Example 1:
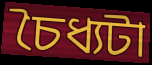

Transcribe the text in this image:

চৈধ্যটা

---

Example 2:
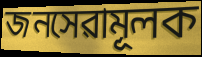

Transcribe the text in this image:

জনসেৱামূলক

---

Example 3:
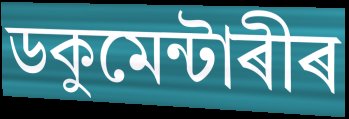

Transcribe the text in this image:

ডকুমেন্টাৰীৰ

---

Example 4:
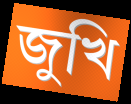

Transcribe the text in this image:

জুখি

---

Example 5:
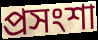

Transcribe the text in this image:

প্ৰসংশা